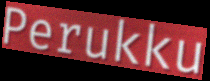
Perukku